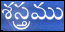
శస్త్రము